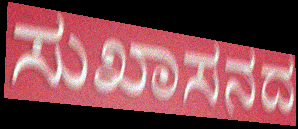
ಸುಖಾಸನದ